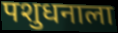
पशुधनाला